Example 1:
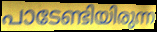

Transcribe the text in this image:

പാടേണ്ടിയിരുന്ന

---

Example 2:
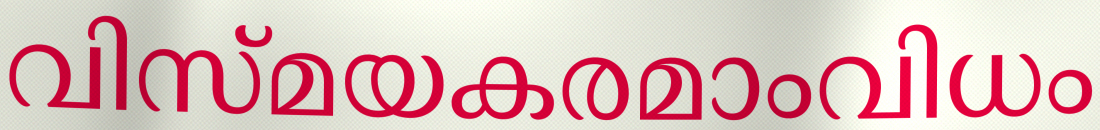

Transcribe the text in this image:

വിസ്മയകരമാംവിധം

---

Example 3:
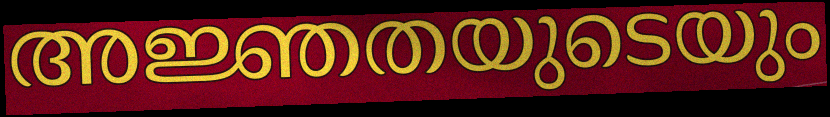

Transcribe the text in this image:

അജ്ഞതയുടെയും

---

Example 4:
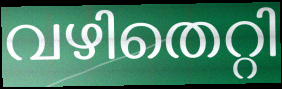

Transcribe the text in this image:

വഴിതെറ്റി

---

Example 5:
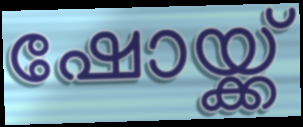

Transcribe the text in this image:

ഷോയ്ക്ക്